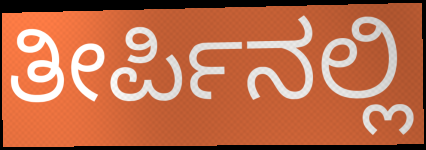
ತೀರ್ಪಿನಲ್ಲಿ